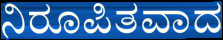
ನಿರೂಪಿತವಾದ